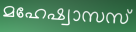
മഹേഷ്വാസസ്